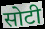
सोटी